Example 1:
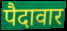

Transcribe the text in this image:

पैदावार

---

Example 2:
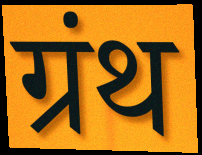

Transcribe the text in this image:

ग्रंथ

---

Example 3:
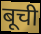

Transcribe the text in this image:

बूची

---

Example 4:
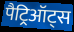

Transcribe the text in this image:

पैट्रिऑट्स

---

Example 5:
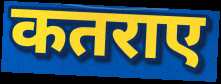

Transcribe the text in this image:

कतराए